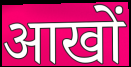
आखों